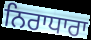
ਨਿਰਾਧਾਰਾ